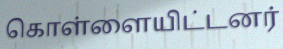
கொள்ளையிட்டனர்